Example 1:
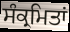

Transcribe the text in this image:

ਸੰਕ੍ਰਮਿਤਾਂ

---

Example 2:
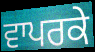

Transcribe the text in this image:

ਵਾਪਰਕੇ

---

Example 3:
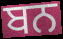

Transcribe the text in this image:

ਬਨ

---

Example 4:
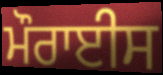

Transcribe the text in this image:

ਮੌਰਾਈਸ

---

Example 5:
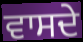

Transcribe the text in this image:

ਵਾਸਦੇ